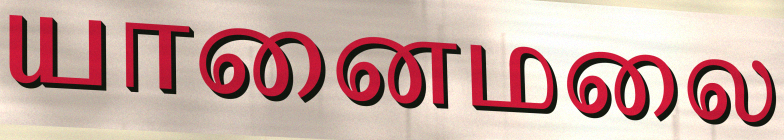
யானைமலை